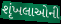
શૃંખલાઓની